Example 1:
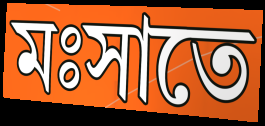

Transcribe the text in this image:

মঃসাতে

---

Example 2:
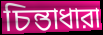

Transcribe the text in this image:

চিন্তাধারা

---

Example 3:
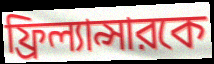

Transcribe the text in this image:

ফ্রিল্যান্সারকে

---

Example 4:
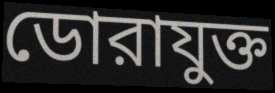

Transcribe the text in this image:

ডোরাযুক্ত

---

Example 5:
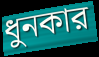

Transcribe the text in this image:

ধুনকার